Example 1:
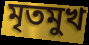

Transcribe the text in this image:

মৃতমুখ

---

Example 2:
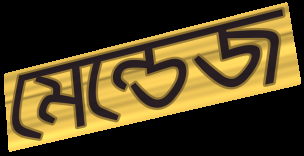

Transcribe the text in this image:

মেন্ডেজ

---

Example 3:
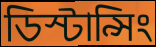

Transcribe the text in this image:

ডিস্টান্সিং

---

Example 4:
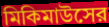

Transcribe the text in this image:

মিকিমাউসের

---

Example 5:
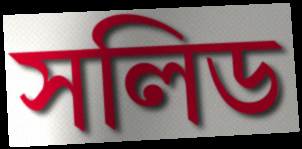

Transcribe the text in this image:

সলিড